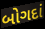
બોગદાં